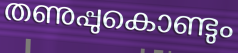
തണുപ്പുകൊണ്ടും